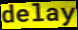
delay